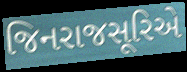
જિનરાજસૂરિએ